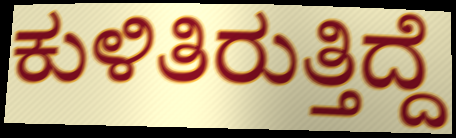
ಕುಳಿತಿರುತ್ತಿದ್ದೆ